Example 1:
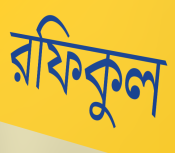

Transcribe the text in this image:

রফিকুল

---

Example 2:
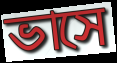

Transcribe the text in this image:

ভাসে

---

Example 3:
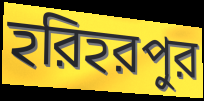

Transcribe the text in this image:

হরিহরপুর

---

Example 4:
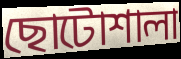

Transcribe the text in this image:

ছোটোশালা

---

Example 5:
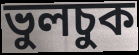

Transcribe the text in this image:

ভুলচুক